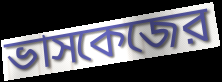
ভাসকেজের